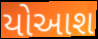
યોઆશ